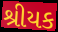
શ્રીયક